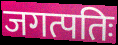
जगत्पतिः